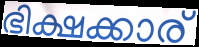
ഭിക്ഷക്കാര്